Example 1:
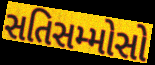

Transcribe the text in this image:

સતિસમ્મોસો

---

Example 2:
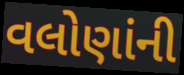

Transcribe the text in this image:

વલોણાંની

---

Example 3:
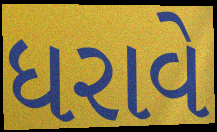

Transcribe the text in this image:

ધરાવે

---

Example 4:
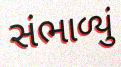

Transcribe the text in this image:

સંભાળ્યું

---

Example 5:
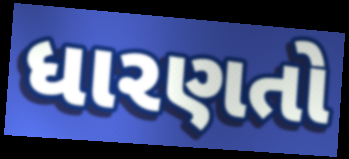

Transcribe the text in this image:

ધારણતો